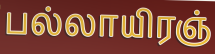
பல்லாயிரஞ்